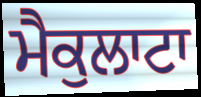
ਮੈਕੁਲਾਟਾ